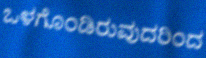
ಒಳಗೊಂಡಿರುವುದರಿಂದ